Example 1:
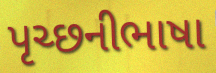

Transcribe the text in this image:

પૃચ્છનીભાષા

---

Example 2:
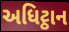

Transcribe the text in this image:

અધિટ્ઠાન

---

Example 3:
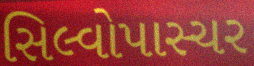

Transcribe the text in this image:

સિલ્વોપાસ્ચર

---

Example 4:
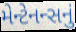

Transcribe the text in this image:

મેન્ટેનન્સનું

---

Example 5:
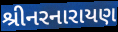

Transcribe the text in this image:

શ્રીનરનારાયણ